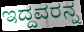
ಇದ್ದವರನ್ನ